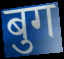
बुग